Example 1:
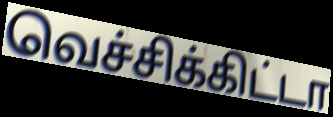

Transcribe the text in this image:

வெச்சிக்கிட்டா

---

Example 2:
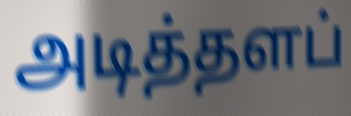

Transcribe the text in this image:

அடித்தளப்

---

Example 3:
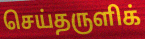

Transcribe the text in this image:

செய்தருளிக்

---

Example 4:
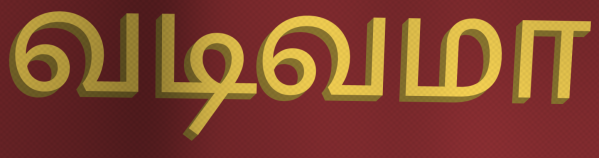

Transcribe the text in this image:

வடிவமா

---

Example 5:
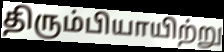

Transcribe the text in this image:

திரும்பியாயிற்று